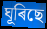
ঘূৰিছে